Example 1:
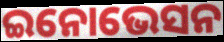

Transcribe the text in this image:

ଇନୋଭେସନ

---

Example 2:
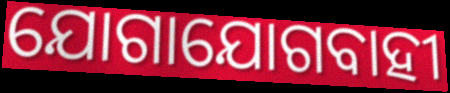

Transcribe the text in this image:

ଯୋଗାଯୋଗବାହୀ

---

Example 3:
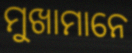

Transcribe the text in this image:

ମୁଖାମାନେ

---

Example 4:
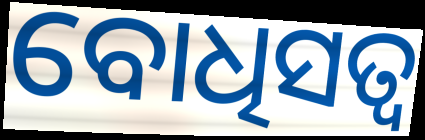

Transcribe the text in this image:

ବୋଧିସତ୍ବ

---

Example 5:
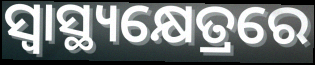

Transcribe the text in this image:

ସ୍ୱାସ୍ଥ୍ୟକ୍ଷେତ୍ରରେ